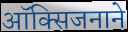
ऑक्सिजनाने